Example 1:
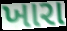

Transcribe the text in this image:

ખારા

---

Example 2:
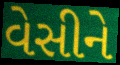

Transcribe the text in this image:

વેસીને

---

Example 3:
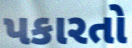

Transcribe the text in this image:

પકારતો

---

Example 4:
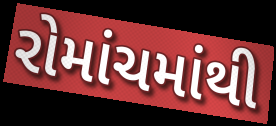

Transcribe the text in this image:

રોમાંચમાંથી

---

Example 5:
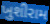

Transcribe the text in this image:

ખુશીરામ